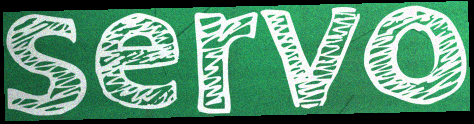
servo